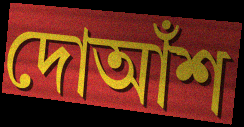
দোআঁশ